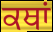
ਕਥਾਂ